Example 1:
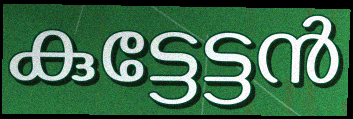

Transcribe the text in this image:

കുട്ടേട്ടൻ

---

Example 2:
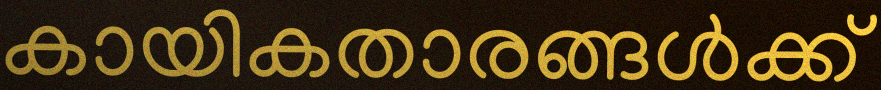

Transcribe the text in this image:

കായികതാരങ്ങൾക്ക്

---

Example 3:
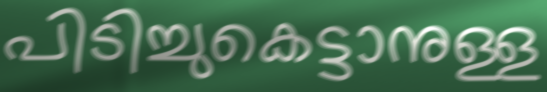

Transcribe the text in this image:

പിടിച്ചുകെട്ടാനുള്ള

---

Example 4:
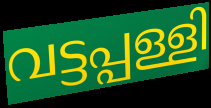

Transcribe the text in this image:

വട്ടപ്പള്ളി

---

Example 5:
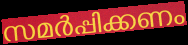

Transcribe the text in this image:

സമർപ്പിക്കണം